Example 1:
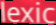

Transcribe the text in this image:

lexic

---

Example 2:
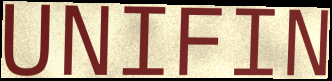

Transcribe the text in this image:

UNIFIN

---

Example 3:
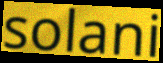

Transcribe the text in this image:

solani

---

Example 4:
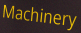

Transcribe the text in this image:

Machinery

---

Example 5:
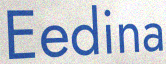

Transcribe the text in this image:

Eedina